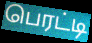
பெரட்டி